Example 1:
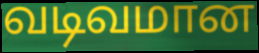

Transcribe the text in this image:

வடிவமான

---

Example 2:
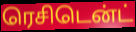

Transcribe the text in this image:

ரெசிடென்ட்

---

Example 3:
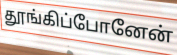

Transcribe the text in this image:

தூங்கிப்போனேன்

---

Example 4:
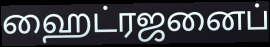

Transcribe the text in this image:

ஹைட்ரஜனைப்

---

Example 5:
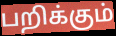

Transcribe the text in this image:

பறிக்கும்